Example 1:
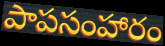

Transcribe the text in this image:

పాపసంహారం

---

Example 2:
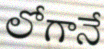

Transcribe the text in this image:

లోగానే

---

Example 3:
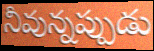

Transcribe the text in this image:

నీవున్నప్పుడు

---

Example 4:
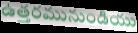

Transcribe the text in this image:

ఉత్తరమునుండియు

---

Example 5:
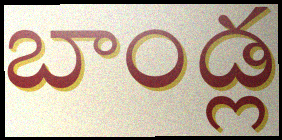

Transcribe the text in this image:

బాండ్ల